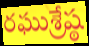
రఘుశ్రేష్ఠ